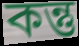
কন্তু